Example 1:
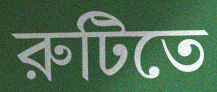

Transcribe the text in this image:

রুটিতে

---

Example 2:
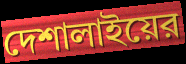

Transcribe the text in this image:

দেশালাইয়ের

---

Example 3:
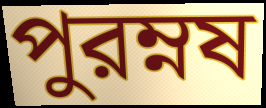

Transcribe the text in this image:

পুরম্নষ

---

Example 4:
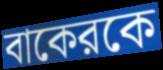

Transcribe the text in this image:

বাকেরকে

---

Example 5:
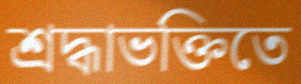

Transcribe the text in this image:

শ্রদ্ধাভক্তিতে